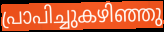
പ്രാപിച്ചുകഴിഞ്ഞു